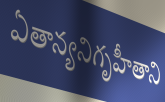
ఏతాన్యనిగృహీతాని